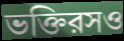
ভক্তিরসও